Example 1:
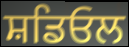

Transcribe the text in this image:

ਸ਼ਡਿਓਲ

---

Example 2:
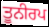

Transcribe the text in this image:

ਤੂਨੀਰਪ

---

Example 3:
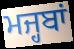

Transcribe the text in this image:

ਮਜ੍ਹਬਾਂ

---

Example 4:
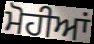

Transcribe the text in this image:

ਮੋਹੀਆਂ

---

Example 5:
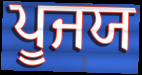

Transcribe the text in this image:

ਪੂਜਯ